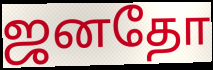
ஜனதோ